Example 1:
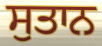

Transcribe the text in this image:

ਸੁਤਾਨ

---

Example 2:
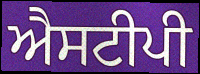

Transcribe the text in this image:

ਐਸਟੀਪੀ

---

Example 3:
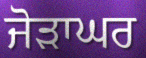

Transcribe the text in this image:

ਜੋੜਾਘਰ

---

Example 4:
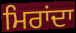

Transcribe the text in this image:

ਮਿਰਾਂਦਾ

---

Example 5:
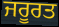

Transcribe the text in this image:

ਜਰੂਰਤ